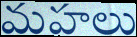
మహలు